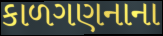
કાળગણનાના